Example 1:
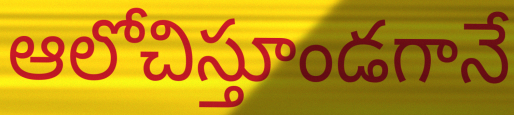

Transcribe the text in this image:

ఆలోచిస్తూండగానే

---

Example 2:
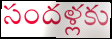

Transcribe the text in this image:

సందళ్లకు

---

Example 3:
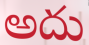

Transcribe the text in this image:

అదు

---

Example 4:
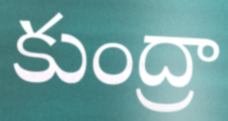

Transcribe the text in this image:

కుంద్రా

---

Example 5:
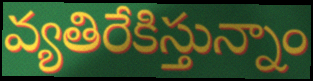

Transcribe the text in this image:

వ్యతిరేకిస్తున్నాం